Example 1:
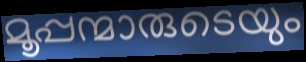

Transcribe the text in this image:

മൂപ്പന്മാരുടെയും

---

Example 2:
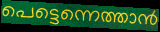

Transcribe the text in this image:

പെട്ടെന്നെത്താൻ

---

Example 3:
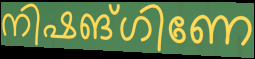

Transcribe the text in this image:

നിഷങ്ഗിണേ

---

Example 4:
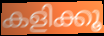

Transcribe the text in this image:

കളിക്കൂ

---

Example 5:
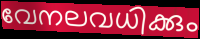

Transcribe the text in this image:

വേനലവധിക്കും